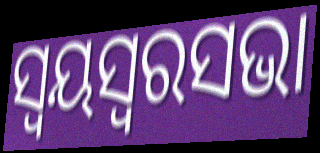
ସ୍ୱୟସ୍ୱରସଭା